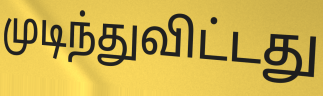
முடிந்துவிட்டது